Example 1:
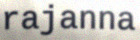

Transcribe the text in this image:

rajanna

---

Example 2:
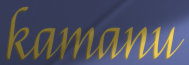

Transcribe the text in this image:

kamanu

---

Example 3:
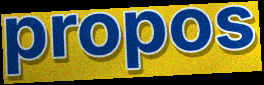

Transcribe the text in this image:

propos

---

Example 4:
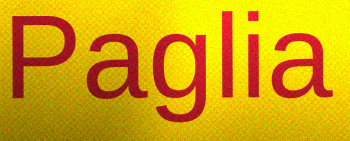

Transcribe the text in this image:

Paglia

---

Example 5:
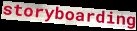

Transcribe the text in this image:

storyboarding